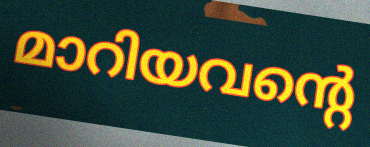
മാറിയവന്റെ